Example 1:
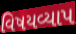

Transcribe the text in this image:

વિષયવ્યાપ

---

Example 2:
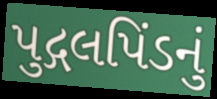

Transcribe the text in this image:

પુદ્ગલપિંડનું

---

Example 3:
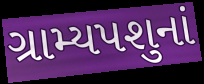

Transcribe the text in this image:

ગ્રામ્યપશુનાં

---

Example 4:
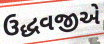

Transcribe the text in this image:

ઉદ્ધવજીએ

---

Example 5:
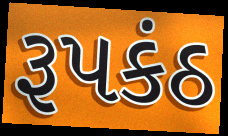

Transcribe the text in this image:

રૂપકંઠ